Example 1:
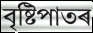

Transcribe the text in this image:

বৃষ্টিপাতৰ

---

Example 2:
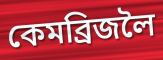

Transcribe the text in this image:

কেমব্ৰিজলৈ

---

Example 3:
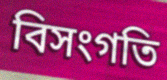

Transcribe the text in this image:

বিসংগতি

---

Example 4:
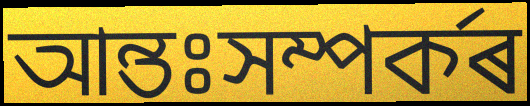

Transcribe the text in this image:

আন্তঃসম্পৰ্কৰ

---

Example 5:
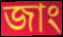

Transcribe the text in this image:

জাং